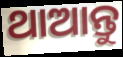
ଥାଆନ୍ତୁ